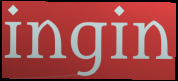
ingin